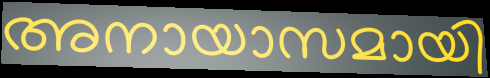
അനായാസമായി